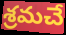
శ్రమచే